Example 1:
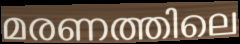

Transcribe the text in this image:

മരണത്തിലെ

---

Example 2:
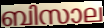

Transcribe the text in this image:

ബിസാല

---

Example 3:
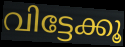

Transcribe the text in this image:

വിട്ടേക്കൂ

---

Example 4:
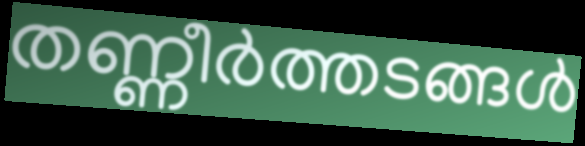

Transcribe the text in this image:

തണ്ണീർത്തടങ്ങൾ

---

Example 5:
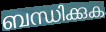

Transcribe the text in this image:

ബന്ധിക്കുക